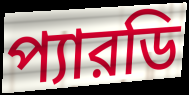
প্যারডি